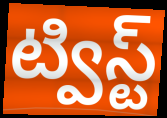
ట్విస్ట్